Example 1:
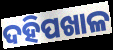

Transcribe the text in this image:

ଦହିପଖାଳ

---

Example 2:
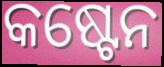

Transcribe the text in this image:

କଷ୍ଟେନ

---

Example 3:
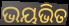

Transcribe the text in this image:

ଭୟଭିତ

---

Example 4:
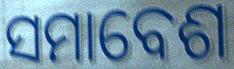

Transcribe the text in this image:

ସମାବେଶ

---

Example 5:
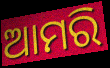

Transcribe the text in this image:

ଆମରି